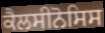
ਕੈਲਸੀਨੋਸਿਸ